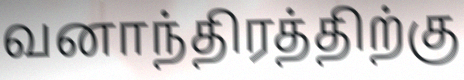
வனாந்திரத்திற்கு